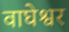
वाघेश्वर